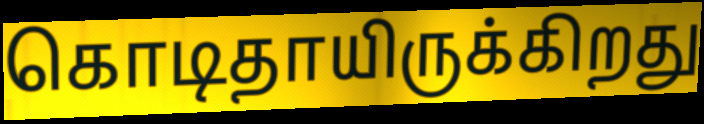
கொடிதாயிருக்கிறது